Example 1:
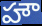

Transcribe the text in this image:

హౌ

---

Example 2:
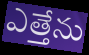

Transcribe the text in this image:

ఎత్తేను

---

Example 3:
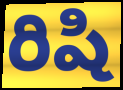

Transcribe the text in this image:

రిషి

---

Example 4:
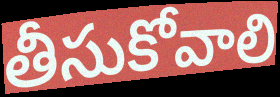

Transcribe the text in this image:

తీసుకోవాలి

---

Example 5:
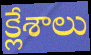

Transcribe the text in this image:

క్లేశాలు